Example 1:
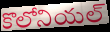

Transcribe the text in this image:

కొలోనియల్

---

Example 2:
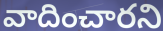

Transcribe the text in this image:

వాదించారని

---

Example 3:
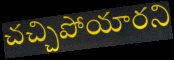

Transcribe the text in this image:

చచ్చిపోయారని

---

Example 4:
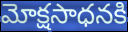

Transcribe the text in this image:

మోక్షసాధనకి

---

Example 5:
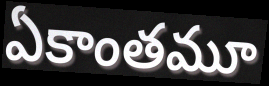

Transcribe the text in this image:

ఏకాంతమూ